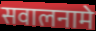
सवालनामे